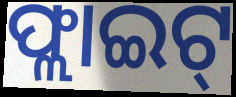
ଫ୍ଲାଇଟ୍